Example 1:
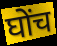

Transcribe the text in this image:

घोंच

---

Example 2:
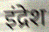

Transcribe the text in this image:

इंद्रेश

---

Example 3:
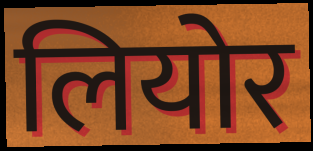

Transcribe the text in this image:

लियोर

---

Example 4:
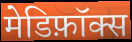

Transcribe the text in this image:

मेडिफ़ॉक्स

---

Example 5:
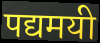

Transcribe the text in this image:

पद्यमयी